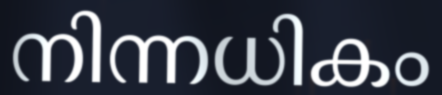
നിന്നധികം